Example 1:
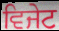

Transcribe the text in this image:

ਵਿਜੇਟ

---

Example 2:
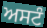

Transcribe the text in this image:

ਅਸਟੰ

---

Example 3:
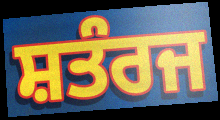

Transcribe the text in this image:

ਸ਼ਤੰਰਜ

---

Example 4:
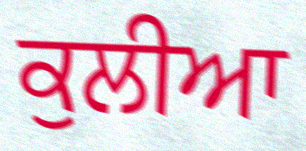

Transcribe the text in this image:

ਕੁਲੀਆ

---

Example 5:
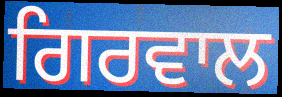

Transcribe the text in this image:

ਗਿਰਵਾਲ